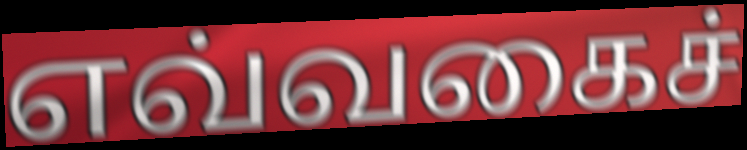
எவ்வகைச்